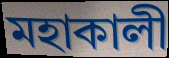
মহাকালী